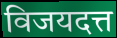
विजयदत्त